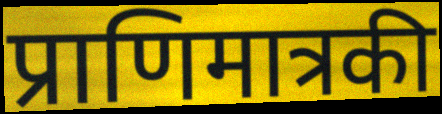
प्राणिमात्रकी